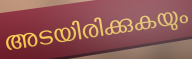
അടയിരിക്കുകയും